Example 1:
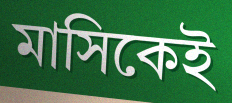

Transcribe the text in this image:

মাসিকেই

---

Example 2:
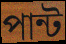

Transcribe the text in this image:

পান্ট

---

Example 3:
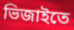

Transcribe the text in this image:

ভিজাইতে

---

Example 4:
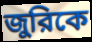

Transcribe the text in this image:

জুরিকে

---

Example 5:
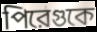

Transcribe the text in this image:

পিরেগুকে